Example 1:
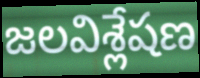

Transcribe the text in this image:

జలవిశ్లేషణ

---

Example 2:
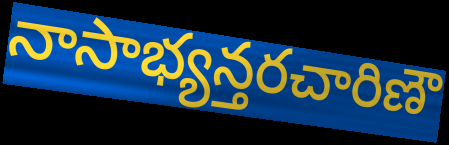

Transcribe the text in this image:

నాసాభ్యన్తరచారిణౌ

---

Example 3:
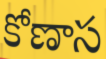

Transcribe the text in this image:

కోణాస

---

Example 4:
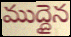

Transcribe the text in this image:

ముద్దైన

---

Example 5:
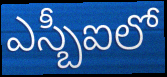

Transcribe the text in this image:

ఎస్బీఐలో